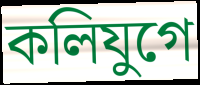
কলিযুগে